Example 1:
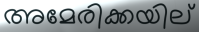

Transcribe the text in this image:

അമേരിക്കയില്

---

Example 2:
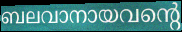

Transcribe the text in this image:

ബലവാനായവന്റെ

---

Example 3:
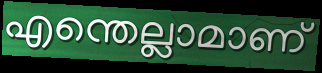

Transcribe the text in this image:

എന്തെല്ലാമാണ്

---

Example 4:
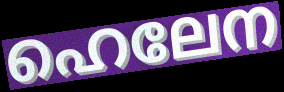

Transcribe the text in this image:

ഹെലേന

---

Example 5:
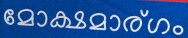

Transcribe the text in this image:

മോക്ഷമാര്ഗം